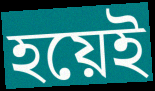
হয়েই